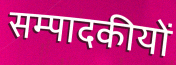
सम्पादकीयों